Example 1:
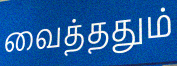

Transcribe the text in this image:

வைத்ததும்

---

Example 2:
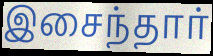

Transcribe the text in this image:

இசைந்தார்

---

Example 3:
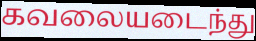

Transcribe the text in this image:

கவலையடைந்து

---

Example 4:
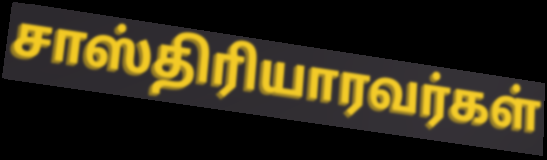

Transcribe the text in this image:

சாஸ்திரியாரவர்கள்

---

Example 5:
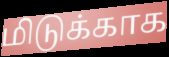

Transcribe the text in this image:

மிடுக்காக